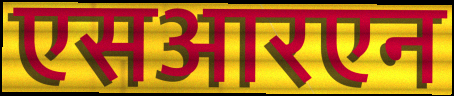
एसआरएन